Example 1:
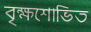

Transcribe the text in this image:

বৃক্ষশোভিত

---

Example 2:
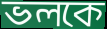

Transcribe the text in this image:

ভলকে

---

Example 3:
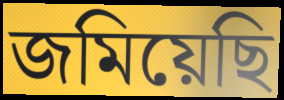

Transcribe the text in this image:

জমিয়েছি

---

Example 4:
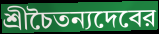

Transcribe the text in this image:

শ্রীচৈতন্যদেবের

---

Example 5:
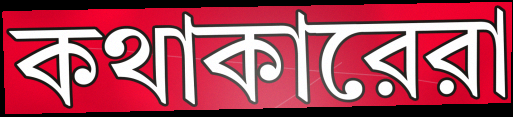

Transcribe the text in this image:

কথাকারেরা